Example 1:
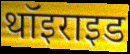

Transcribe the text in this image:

थॉइराइड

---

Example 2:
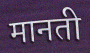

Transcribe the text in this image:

मानती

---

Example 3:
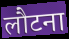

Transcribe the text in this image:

लौटना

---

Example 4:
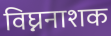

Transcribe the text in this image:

विघ्ननाशक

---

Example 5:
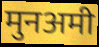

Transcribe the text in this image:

मुनअमी